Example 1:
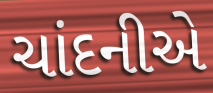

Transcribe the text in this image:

ચાંદનીએ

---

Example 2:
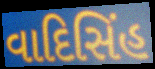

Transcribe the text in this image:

વાદિસિંહ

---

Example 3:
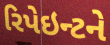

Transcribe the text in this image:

રિપેઇન્ટને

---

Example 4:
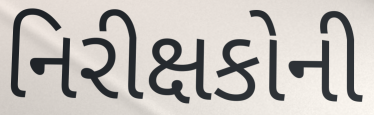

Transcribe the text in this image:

નિરીક્ષકોની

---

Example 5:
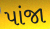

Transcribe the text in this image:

પાંજા